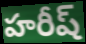
హరీష్